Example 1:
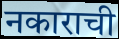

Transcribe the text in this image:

नकाराची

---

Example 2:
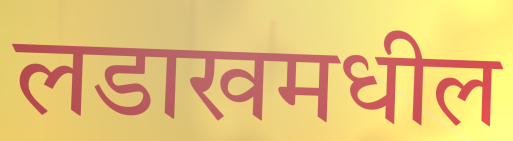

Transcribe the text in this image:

लडाखमधील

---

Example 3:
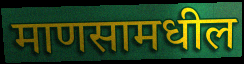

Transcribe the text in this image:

माणसामधील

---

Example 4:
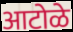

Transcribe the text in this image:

आटोळे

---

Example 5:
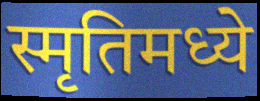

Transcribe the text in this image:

स्मृतिमध्ये